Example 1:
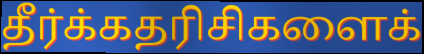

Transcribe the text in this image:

தீர்க்கதரிசிகளைக்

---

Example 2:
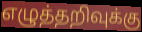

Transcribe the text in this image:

எழுத்தறிவுக்கு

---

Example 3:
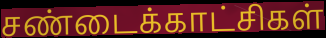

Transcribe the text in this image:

சண்டைக்காட்சிகள்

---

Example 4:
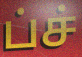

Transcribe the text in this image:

ப்ச்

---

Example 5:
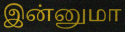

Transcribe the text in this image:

இன்னுமா